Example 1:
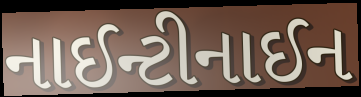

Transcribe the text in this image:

નાઈન્ટીનાઈન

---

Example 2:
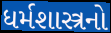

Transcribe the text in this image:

ધર્મશાસ્ત્રનો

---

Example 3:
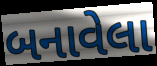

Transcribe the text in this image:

બનાવેલા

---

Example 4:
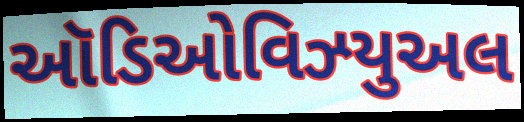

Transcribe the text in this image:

ઑડિઓવિઝ્યુઅલ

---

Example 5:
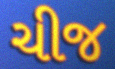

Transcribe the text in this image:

ચીજ